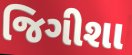
જિગીશા